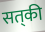
सत्‌की